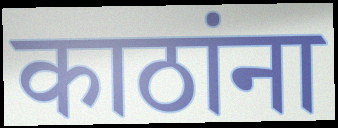
काठांना